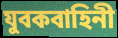
যুবকবাহিনী